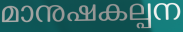
മാനുഷകല്പന